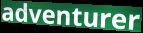
adventurer